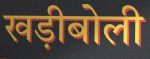
खड़ीबोली